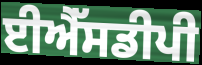
ਈਐੱਸਡੀਪੀ